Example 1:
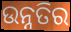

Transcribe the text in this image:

ଉନ୍ନତିର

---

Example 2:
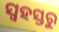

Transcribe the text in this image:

ସ୍ୱହସ୍ତରୁ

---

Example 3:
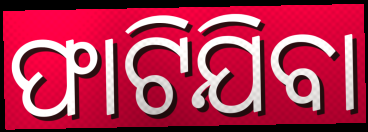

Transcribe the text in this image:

ଫାଟିଯିବା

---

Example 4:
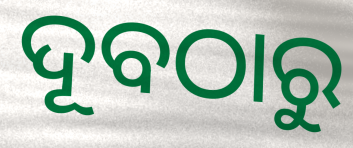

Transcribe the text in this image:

ଦୂବଠାରୁ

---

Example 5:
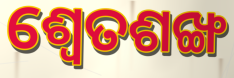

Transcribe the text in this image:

ଶ୍ୱେତଶଙ୍ଖ